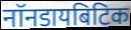
नॉनडायबिटिक